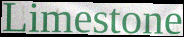
Limestone